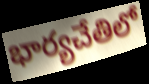
భార్యచేతిలో